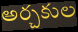
అర్చకుల